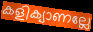
കളിക്യാണല്ലേ